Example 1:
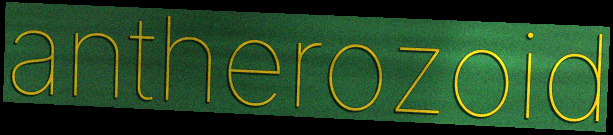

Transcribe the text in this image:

antherozoid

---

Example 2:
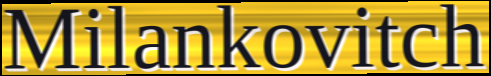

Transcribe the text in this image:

Milankovitch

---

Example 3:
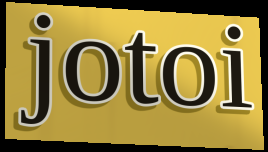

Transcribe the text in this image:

jotoi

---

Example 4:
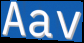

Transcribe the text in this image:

Aav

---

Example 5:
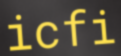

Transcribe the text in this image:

icfi